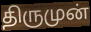
திருமுன்